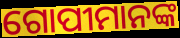
ଗୋପୀମାନଙ୍କ